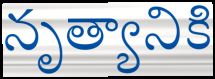
నృత్యానికి